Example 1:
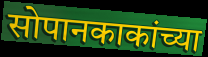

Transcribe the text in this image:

सोपानकाकांच्या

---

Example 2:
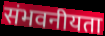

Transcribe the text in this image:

संभवनीयता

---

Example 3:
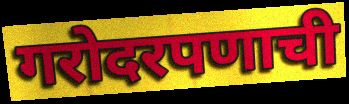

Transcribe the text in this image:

गरोदरपणाची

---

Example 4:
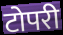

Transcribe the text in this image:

टोपरी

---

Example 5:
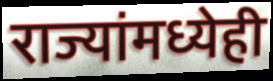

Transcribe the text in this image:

राज्यांमध्येही